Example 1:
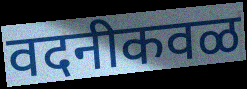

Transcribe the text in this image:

वदनीकवळ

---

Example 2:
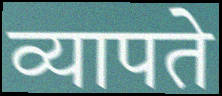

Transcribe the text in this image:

व्यापते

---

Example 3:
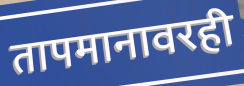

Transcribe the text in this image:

तापमानावरही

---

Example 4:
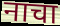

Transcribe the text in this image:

नाचा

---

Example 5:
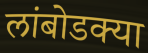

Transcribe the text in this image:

लांबोडक्या